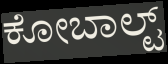
ಕೋಬಾಲ್ಟ್